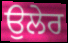
ਉਲੇਰ